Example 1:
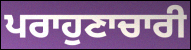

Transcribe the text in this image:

ਪਰਾਹੁਣਾਚਾਰੀ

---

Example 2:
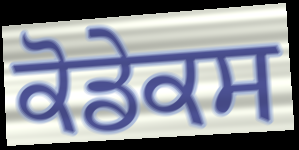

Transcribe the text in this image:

ਕੋਡੇਕਸ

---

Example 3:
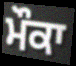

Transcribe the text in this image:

ਮੌਕਾ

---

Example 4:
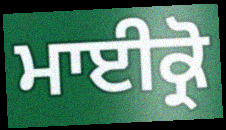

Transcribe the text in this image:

ਮਾਈਕ੍ਰੋ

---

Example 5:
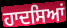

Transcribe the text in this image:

ਹਾਦਸਿਆਂ